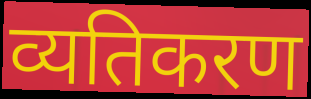
व्यतिकरण